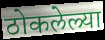
ठोकलेल्या